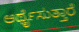
ಅರ್ಥೈಸುತ್ತಾರೆ